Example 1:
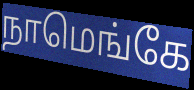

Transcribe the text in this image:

நாமெங்கே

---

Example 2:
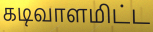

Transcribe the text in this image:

கடிவாளமிட்ட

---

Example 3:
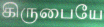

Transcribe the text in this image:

கிருபையே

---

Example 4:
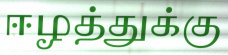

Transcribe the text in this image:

ஈழத்துக்கு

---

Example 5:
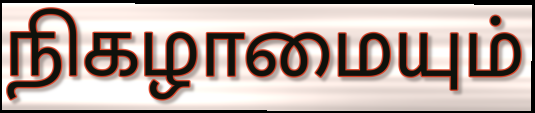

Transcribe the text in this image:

நிகழாமையும்